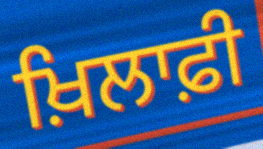
ਖ਼ਿਲਾਫ਼ੀ